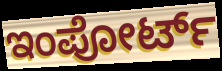
ಇಂಪೋರ್ಟ್